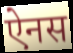
ऐनस